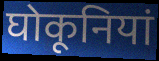
घोकूनियां